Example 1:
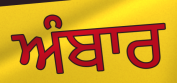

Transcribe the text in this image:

ਅੰਬਾਰ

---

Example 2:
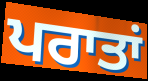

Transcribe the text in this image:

ਪਰਾਤਾਂ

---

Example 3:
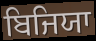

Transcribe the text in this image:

ਬਿਜਿਯਾ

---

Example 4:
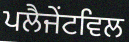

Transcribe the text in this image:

ਪਲੈਜੇਂਟਵਿਲ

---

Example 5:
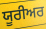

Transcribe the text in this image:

ਯੂਰੀਅਰ